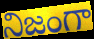
నిజంగా